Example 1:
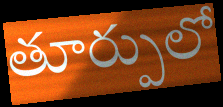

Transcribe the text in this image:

తూర్పులో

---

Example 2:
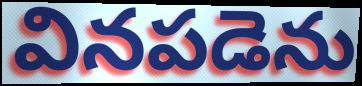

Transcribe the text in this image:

వినపడెను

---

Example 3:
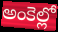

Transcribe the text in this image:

అంకెల్లో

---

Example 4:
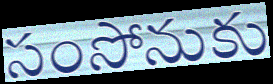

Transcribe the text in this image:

సంసోనుకు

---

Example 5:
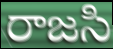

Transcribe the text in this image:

రాజసి